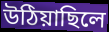
উঠিয়াছিলে